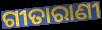
ଗୀତାରାଣୀ